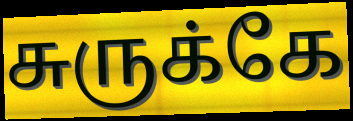
சுருக்கே